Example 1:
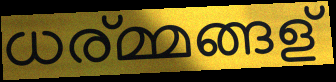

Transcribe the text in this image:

ധര്മ്മങ്ങള്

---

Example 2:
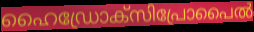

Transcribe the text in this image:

ഹൈഡ്രോക്സിപ്രോപൈൽ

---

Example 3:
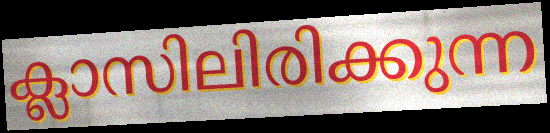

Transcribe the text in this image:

ക്ലാസിലിരിക്കുന്ന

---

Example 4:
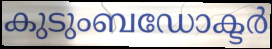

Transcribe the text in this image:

കുടുംബഡോക്ടർ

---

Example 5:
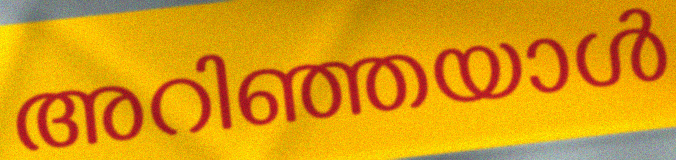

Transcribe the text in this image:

അറിഞ്ഞയാൾ